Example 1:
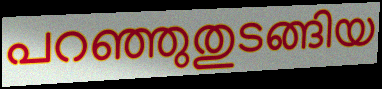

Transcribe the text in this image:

പറഞ്ഞുതുടങ്ങിയ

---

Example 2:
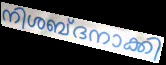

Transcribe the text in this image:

നിശബ്ദനാക്കി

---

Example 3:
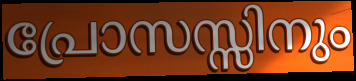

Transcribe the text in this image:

പ്രോസസ്സിനും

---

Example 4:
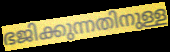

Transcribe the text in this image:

ഭജിക്കുന്നതിനുള്ള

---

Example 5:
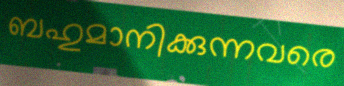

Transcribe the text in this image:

ബഹുമാനിക്കുന്നവരെ